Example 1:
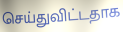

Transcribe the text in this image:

செய்துவிட்டதாக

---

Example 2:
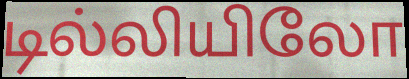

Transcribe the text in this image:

டில்லியிலோ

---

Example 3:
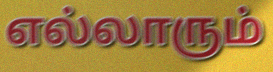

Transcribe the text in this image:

எல்லாரும்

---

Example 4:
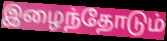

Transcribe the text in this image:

இழைந்தோடும்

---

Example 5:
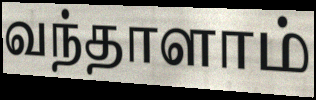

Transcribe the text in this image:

வந்தாளாம்